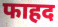
फाहद